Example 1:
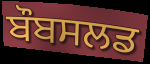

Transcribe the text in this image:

ਬੌਬਸਲਡ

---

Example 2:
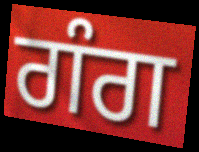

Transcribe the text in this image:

ਗੰਗ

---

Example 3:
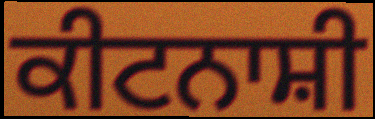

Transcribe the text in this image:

ਕੀਟਨਾਸ਼ੀ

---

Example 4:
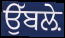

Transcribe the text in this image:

ਉੱਬਲ਼ੇ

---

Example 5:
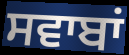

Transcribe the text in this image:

ਸਵਾਬਾਂ